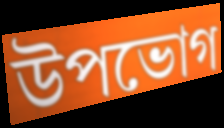
উপভোগ